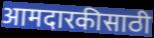
आमदारकीसाठी